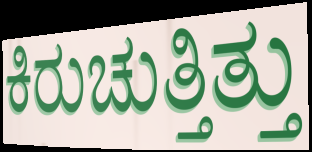
ಕಿರುಚುತ್ತಿತ್ತು